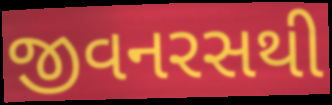
જીવનરસથી